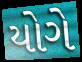
યોગે